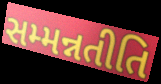
સમ્મન્નતીતિ